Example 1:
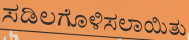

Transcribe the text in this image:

ಸಡಿಲಗೊಳಿಸಲಾಯಿತು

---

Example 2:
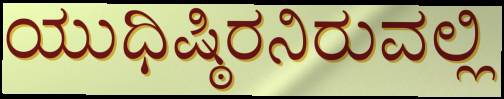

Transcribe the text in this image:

ಯುಧಿಷ್ಠಿರನಿರುವಲ್ಲಿ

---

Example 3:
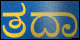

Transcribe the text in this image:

ತದಾ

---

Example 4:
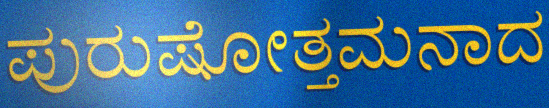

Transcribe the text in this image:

ಪುರುಷೋತ್ತಮನಾದ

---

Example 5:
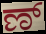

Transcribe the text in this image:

ಣ್